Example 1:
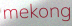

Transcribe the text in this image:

mekong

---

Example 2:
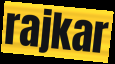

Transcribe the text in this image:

rajkar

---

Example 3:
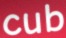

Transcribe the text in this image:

cub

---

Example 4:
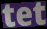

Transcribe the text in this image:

tet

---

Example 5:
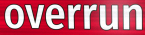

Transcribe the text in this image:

overrun